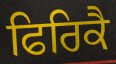
ਫਿਰਿਕੈ